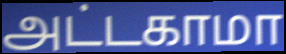
அட்டகாமா